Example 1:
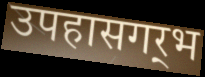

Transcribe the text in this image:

उपहासगर्भ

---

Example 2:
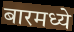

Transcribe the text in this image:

बारमध्ये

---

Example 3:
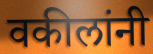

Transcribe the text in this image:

वकीलांनी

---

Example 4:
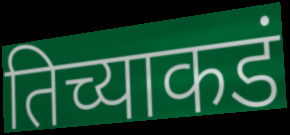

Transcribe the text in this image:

तिच्याकडं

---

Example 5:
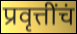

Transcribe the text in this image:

प्रवृत्तींचं